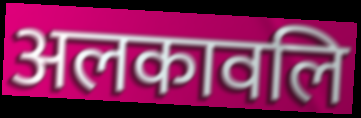
अलकावलि